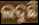
ଲଦୁଛି